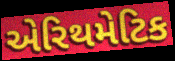
એરિથમેટિક